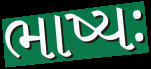
ભાષ્યઃ